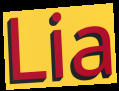
Lia